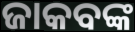
ଜାକବଙ୍କ